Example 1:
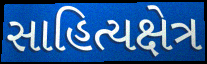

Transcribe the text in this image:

સાહિત્યક્ષેત્ર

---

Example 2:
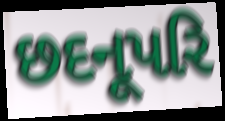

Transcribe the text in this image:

છદનૂપરિ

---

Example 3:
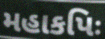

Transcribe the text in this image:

મહાકપિઃ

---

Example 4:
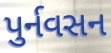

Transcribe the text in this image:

પુર્નવસન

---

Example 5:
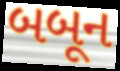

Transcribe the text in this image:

બબૂન